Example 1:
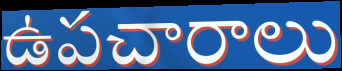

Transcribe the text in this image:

ఉపచారాలు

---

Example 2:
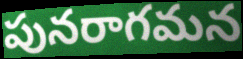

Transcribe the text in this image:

పునరాగమన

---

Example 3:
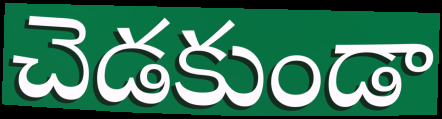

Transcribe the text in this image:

చెడకుండా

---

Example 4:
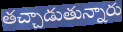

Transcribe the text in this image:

తచ్చాడుతున్నారు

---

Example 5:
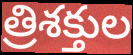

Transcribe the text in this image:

త్రిశక్తుల